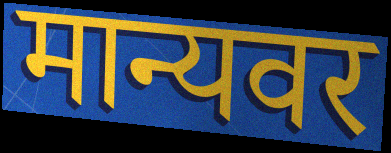
मान्यवर